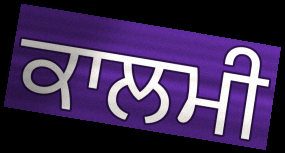
ਕਾਲਮੀ